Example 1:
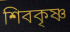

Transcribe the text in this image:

শিবকৃষ্ণ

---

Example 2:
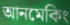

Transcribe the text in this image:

আনমেকিং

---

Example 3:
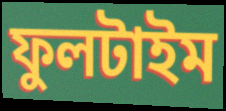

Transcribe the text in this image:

ফুলটাইম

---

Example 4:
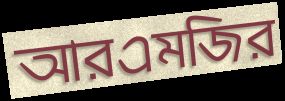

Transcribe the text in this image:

আরএমজির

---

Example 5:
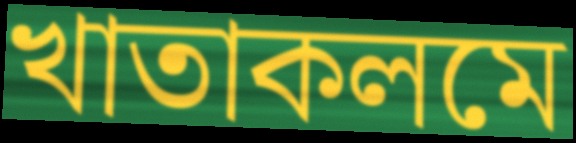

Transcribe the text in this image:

খাতাকলমে